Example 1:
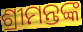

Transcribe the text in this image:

ଶ୍ରୀମନ୍ତଙ୍କ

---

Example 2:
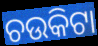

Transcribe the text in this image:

ଚଉକିଟା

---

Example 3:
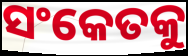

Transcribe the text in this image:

ସଂକେତକୁ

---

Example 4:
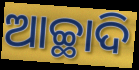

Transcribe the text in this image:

ଆଚ୍ଛାଦି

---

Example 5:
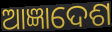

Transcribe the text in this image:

ଆଜ୍ଞାଦେଶ